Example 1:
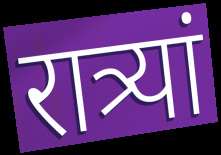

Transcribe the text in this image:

रात्र्यां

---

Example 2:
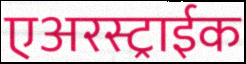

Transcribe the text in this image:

एअरस्ट्राईक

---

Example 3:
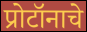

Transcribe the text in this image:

प्रोटॉनाचे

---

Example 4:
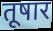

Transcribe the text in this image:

तूषार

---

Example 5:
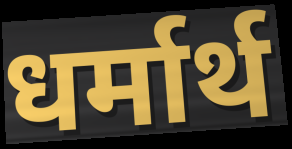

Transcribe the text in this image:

धर्मार्थ